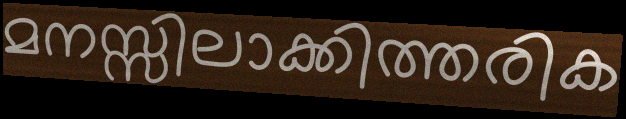
മനസ്സിലാക്കിത്തരിക